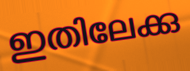
ഇതിലേക്കു